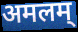
अमलम्